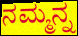
ನಮ್ಮನ್ನ